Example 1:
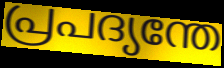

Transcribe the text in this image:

പ്രപദ്യന്തേ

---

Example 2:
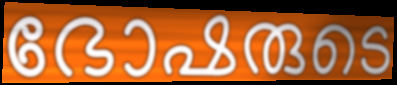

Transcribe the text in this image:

ഭോഷരുടെ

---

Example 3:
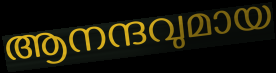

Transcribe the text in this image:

ആനന്ദവുമായ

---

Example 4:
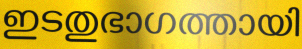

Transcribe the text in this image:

ഇടതുഭാഗത്തായി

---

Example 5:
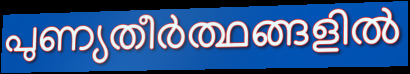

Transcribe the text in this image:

പുണ്യതീർത്ഥങ്ങളിൽ